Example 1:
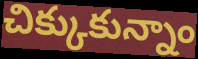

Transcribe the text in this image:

చిక్కుకున్నాం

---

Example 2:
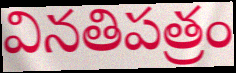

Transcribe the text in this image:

వినతిపత్రం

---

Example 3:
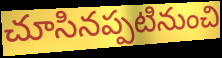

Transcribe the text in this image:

చూసినప్పటినుంచి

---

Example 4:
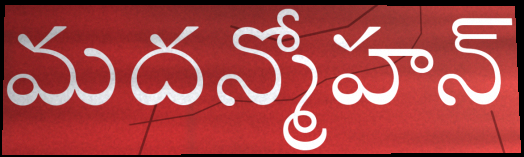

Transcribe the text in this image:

మదన్మోహన్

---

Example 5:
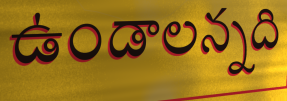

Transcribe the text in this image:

ఉండాలన్నది